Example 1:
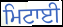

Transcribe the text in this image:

ਮਿਟਾਈ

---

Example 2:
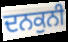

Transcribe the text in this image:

ਦਨਕੁਨੀ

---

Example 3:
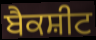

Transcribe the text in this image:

ਬੈਕਸ਼ੀਟ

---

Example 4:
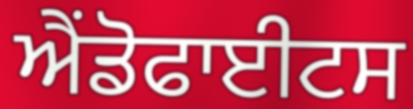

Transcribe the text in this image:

ਐਂਡੋਫਾਈਟਸ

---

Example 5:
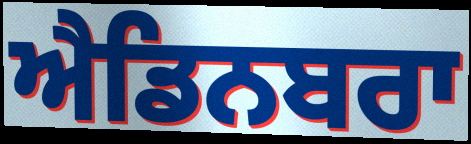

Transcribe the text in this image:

ਐਡਿਨਬਰਾ